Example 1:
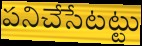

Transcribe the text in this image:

పనిచేసేటట్టు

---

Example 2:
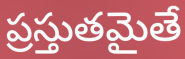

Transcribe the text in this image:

ప్రస్తుతమైతే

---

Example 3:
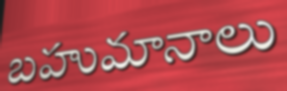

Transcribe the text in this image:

బహుమానాలు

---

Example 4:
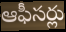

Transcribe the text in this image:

ఆఫీసర్లు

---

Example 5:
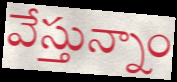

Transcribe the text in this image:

వేస్తున్నాం